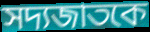
সদ্যজাতকে